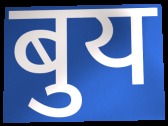
बुय